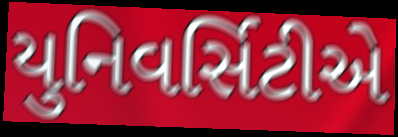
યુનિવર્સિટીએ